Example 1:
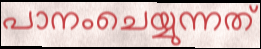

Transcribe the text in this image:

പാനംചെയ്യുന്നത്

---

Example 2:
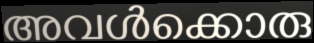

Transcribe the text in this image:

അവൾക്കൊരു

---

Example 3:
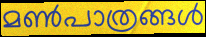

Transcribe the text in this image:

മൺപാത്രങ്ങൾ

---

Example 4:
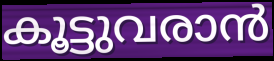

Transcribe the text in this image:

കൂട്ടുവരാൻ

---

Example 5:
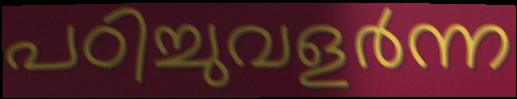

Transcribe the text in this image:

പഠിച്ചുവളർന്ന